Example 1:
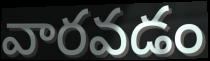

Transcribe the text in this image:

వారవడం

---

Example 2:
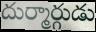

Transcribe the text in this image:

దుర్మార్గుడు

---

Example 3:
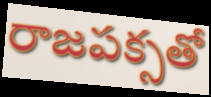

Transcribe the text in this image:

రాజపక్సతో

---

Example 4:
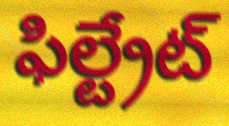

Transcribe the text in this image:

ఫిల్ట్రేట్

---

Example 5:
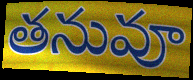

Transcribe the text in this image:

తనువూ